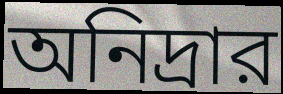
অনিদ্রার